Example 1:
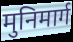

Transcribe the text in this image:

मुनिमार्ग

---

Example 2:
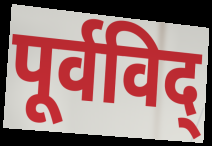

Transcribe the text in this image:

पूर्वविद्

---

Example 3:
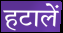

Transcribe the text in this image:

हटालें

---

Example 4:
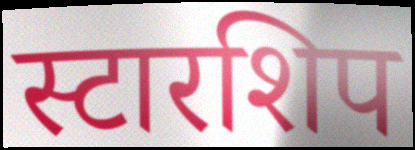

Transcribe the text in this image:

स्टारशिप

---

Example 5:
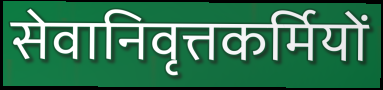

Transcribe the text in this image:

सेवानिवृत्तकर्मियों